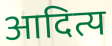
आदित्य